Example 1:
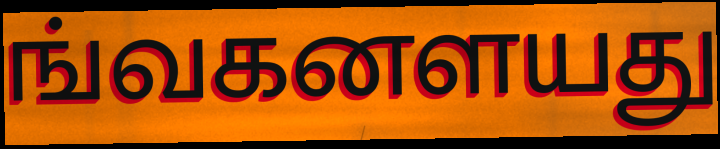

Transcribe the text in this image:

ங்வகனளயது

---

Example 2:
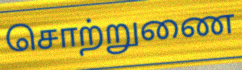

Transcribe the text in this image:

சொற்றுணை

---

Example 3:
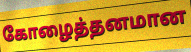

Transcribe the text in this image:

கோழைத்தனமான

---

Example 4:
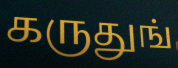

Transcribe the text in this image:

கருதுங்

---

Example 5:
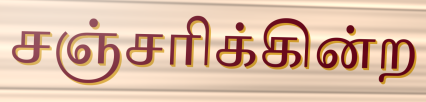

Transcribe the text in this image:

சஞ்சரிக்கின்ற